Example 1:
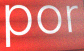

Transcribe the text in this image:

por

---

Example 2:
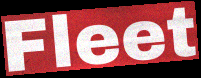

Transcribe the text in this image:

Fleet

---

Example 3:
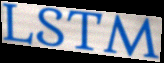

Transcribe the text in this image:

LSTM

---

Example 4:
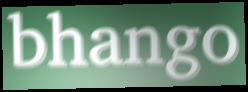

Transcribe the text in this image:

bhango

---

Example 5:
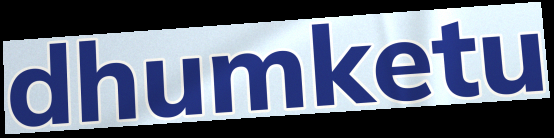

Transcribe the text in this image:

dhumketu